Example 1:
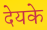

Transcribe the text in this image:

देयके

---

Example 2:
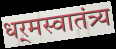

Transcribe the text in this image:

धर्मस्वातंत्र्य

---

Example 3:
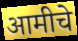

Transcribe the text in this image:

आमीचे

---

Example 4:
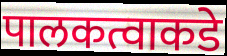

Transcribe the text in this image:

पालकत्वाकडे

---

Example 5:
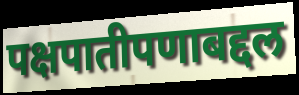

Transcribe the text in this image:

पक्षपातीपणाबद्दल